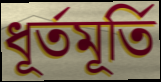
ধূর্তমূর্তি